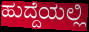
ಹುದ್ದೆಯಲ್ಲಿ